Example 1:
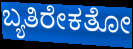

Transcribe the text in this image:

ಬ್ಯತಿರೇಕತೋ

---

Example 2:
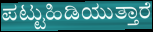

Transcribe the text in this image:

ಪಟ್ಟುಹಿಡಿಯುತ್ತಾರೆ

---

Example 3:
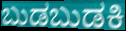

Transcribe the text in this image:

ಬುಡಬುಡಕಿ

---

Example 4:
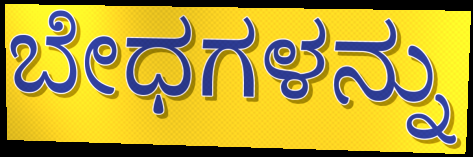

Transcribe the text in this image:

ಬೇಧಗಳನ್ನು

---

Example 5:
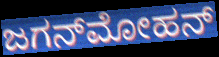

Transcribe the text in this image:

ಜಗನ್‌ಮೋಹನ್